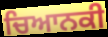
ਚਿਆਨਕੀ